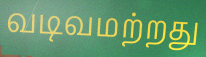
வடிவமற்றது